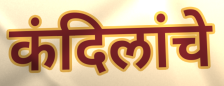
कंदिलांचे